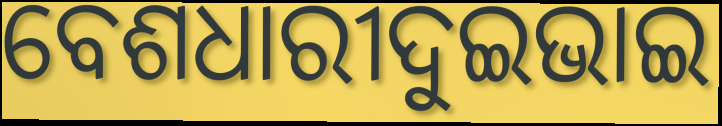
ବେଶଧାରୀଦୁଇଭାଇ